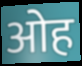
ओह